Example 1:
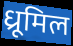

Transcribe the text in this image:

ध्रूमिल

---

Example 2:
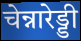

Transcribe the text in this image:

चेन्नारेड्डी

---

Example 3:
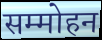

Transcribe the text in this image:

सम्मोहन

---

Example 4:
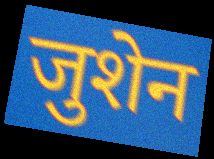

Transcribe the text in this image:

जुशेन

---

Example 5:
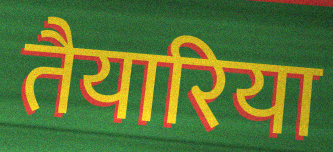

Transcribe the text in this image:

तैयारिया